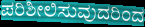
ಪರಿಶೀಲಿಸುವುದರಿಂದ